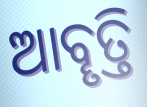
ଆବୄତ୍ତି